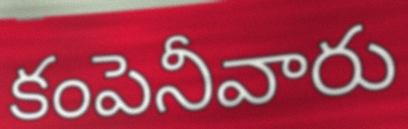
కంపెనీవారు